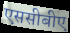
एससीबीए